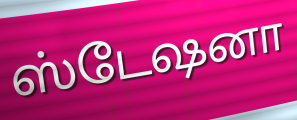
ஸ்டேஷனா